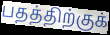
பதத்திற்குக்